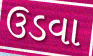
ઉડવા